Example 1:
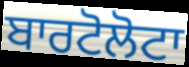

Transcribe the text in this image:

ਬਾਰਟੋਲੋਟਾ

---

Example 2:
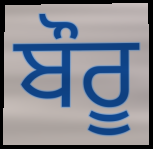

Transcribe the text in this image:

ਬੌਰੂ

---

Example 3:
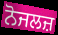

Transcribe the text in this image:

ਨੋਜਲਜ਼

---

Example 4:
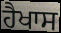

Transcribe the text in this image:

ਹੈਖਾਸ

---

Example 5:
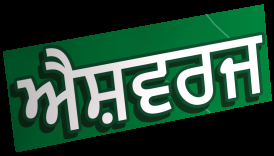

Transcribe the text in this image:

ਐਸ਼ਵਰਜ